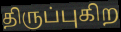
திருப்புகிற